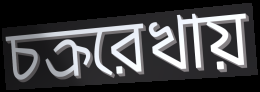
চক্ররেখায়